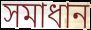
সমাধান